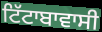
ਟਿੱਟਾਬਾਵਾਸੀ